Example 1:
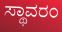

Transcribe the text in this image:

ಸ್ಥಾವರಂ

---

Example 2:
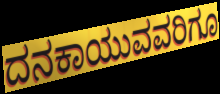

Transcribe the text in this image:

ದನಕಾಯುವವರಿಗೂ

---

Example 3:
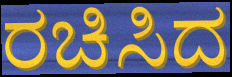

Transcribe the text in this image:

ರಚಿಸಿದ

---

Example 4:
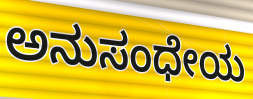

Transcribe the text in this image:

ಅನುಸಂಧೇಯ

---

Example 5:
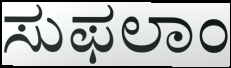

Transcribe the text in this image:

ಸುಫಲಾಂ